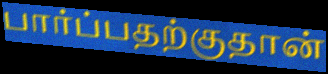
பார்ப்பதற்குதான்